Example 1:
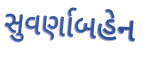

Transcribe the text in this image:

સુવર્ણાબહેન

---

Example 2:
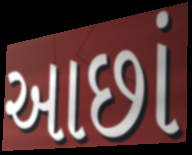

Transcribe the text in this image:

આછાં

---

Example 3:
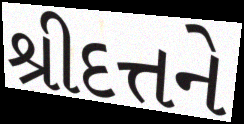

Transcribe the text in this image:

શ્રીદત્તને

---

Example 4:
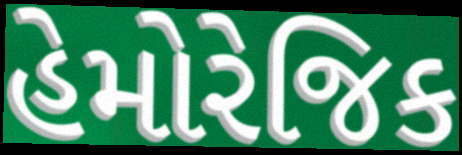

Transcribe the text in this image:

હેમોરેજિક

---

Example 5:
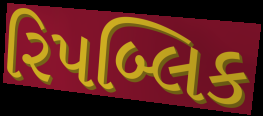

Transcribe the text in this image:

રિપબ્લિક